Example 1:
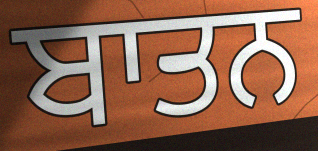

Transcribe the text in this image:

ਬਾਤਨ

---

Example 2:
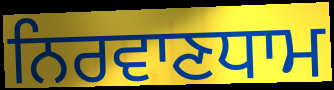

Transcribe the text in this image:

ਨਿਰਵਾਣਧਾਮ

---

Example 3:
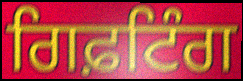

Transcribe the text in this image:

ਗਿਫ਼ਟਿੰਗ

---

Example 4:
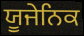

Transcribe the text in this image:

ਯੂਜੇਨਿਕ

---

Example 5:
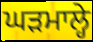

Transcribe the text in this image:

ਘੜਮਾਲ੍ਹੇ